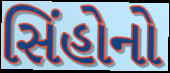
સિંહોનો